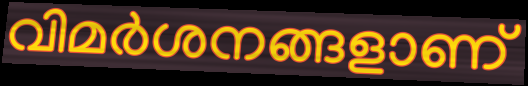
വിമർശനങ്ങളാണ്